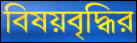
বিষয়বৃদ্ধির